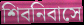
শিবনিবাসে